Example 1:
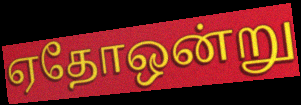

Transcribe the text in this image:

ஏதோஒன்று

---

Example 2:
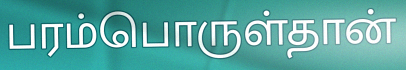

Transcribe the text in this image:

பரம்பொருள்தான்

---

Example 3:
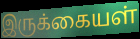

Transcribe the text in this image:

இருக்கையள்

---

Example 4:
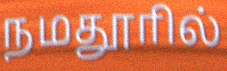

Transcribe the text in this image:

நமதூரில்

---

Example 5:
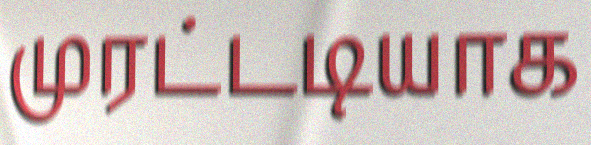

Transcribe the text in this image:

முரட்டடியாக